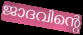
ജാദവിന്റെ